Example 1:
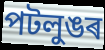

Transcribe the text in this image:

পটলুঙৰ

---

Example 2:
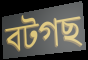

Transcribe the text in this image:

বটগছ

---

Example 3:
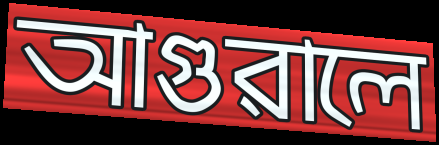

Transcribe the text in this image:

আগুৱালে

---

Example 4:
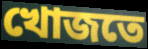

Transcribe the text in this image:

খোজতে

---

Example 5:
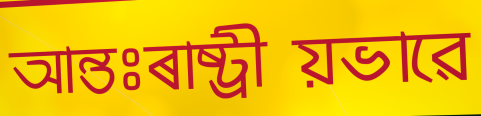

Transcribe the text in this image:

আন্তঃৰাষ্ট্ৰীয়ভাৱে